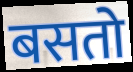
बसतो